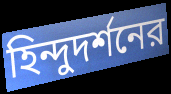
হিন্দুদর্শনের